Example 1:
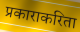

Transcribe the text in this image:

प्रकाराकरिता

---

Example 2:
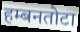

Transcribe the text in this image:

हम्बनतोटा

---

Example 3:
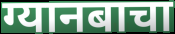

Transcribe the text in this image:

ग्यानबाचा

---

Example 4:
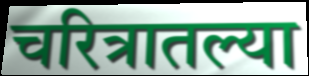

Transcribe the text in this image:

चरित्रातल्या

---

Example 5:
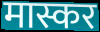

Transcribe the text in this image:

मास्कर